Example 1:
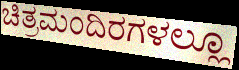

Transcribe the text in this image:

ಚಿತ್ರಮಂದಿರಗಳಲ್ಲೂ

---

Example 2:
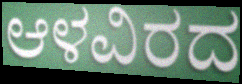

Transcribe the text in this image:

ಆಳವಿರದ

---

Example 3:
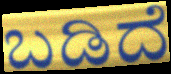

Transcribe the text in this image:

ಬಡಿದೆ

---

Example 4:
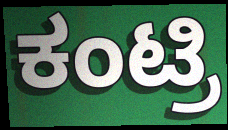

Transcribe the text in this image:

ಕಂಟ್ರಿ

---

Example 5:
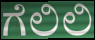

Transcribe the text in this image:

ಗೆಲಿಲಿ